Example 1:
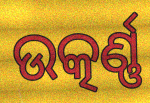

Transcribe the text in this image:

ଉତ୍କର୍ଣ୍ଣ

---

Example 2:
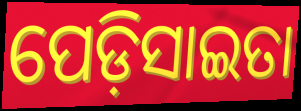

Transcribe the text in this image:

ପେଡ଼ିସାଇତା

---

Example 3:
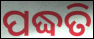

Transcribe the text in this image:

ପଦ୍ଧତି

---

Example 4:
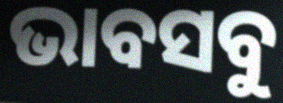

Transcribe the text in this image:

ଭାବସବୁ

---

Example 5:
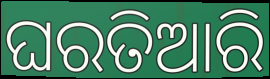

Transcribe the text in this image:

ଘରତିଆରି